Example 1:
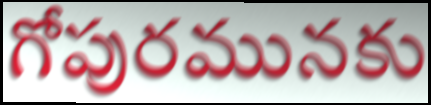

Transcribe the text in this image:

గోపురమునకు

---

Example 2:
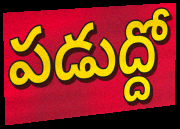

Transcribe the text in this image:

పడుద్దో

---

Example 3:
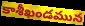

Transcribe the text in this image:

కాశీఖండమున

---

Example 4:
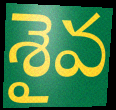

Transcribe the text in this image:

శైవ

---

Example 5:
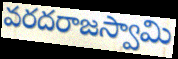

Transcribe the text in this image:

వరదరాజస్వామి